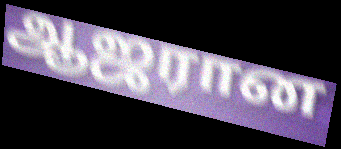
ஆஜரான